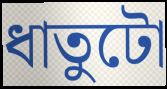
ধাতুটো